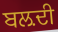
ਬਲ਼ਦੀ